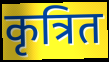
कृत्रित